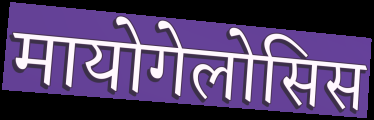
मायोगेलोसिस